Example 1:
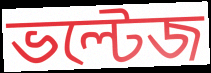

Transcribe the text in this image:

ভল্টেজ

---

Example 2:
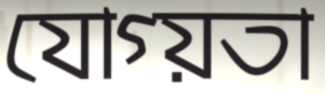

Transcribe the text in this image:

যোগ্য়তা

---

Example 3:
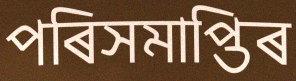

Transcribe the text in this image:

পৰিসমাপ্তিৰ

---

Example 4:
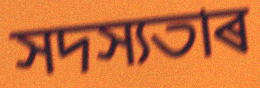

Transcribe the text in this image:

সদস্যতাৰ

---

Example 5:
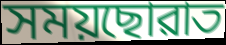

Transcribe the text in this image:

সময়ছোৱাত